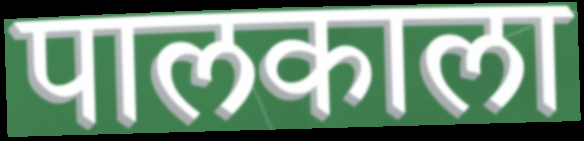
पालकाला